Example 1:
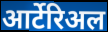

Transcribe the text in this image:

आर्टेरिअल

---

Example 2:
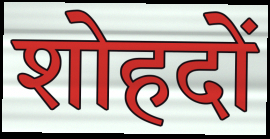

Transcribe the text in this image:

शोहदों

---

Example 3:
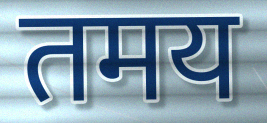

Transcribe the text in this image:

तमय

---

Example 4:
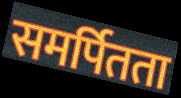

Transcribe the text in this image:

समर्पितता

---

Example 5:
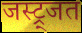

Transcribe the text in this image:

जस्ट्र्जत